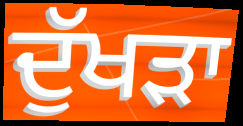
ਦੁੱਖਡ਼ਾ